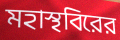
মহাস্থবিরের